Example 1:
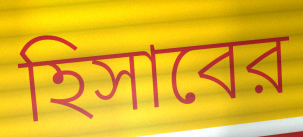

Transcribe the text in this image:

হিসাবের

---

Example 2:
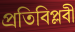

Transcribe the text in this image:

প্রতিবিপ্লবী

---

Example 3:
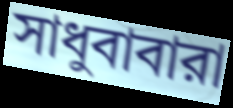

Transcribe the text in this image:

সাধুবাবারা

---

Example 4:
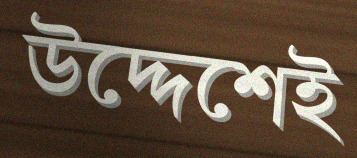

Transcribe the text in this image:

উদ্দেশেই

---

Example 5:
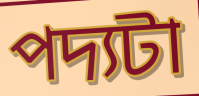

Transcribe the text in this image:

পদ্যটা